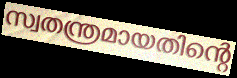
സ്വതന്ത്രമായതിന്റെ